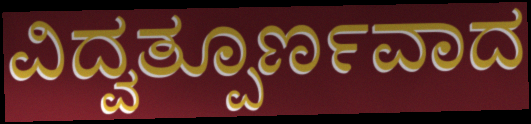
ವಿದ್ವತ್ಪೂರ್ಣವಾದ